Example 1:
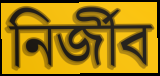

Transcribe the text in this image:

নিৰ্জীব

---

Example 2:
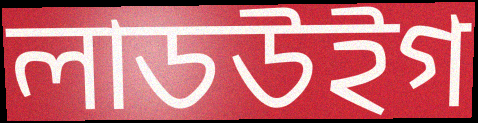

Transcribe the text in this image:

লাডউইগ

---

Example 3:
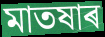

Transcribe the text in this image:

মাতষাৰ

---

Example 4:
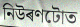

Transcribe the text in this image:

নিউৰণটোত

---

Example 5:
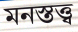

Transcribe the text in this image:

মনস্তত্ত্ব